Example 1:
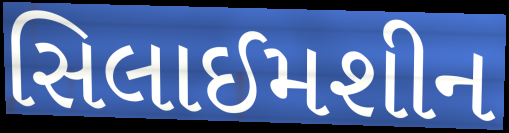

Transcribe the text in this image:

સિલાઈમશીન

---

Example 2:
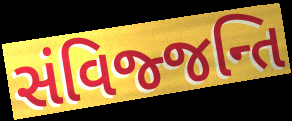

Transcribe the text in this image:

સંવિજ્જન્તિ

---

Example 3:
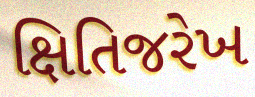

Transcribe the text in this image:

ક્ષિતિજરેખ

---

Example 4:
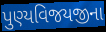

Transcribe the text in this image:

પુણ્યવિજયજીના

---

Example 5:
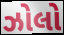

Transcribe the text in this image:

ઝોલો